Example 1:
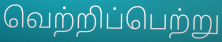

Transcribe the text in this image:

வெற்றிப்பெற்று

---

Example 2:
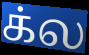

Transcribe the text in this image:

க்ல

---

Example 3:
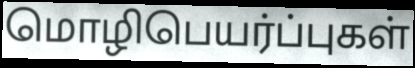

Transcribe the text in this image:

மொழிபெயர்ப்புகள்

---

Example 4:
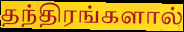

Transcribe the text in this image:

தந்திரங்களால்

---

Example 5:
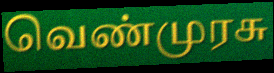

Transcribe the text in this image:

வெண்முரசு